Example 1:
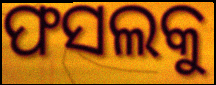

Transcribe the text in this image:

ଫସଲକୁ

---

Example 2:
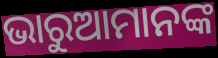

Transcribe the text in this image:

ଭାରୁଆମାନଙ୍କ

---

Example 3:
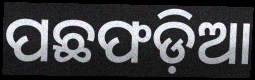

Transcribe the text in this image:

ପଛଫଡ଼ିଆ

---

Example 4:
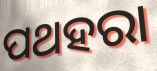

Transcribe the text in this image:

ପଥହରା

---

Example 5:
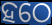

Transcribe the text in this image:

ହଠେ